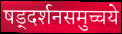
षड्दर्शनसमुच्चये